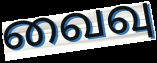
வைவு